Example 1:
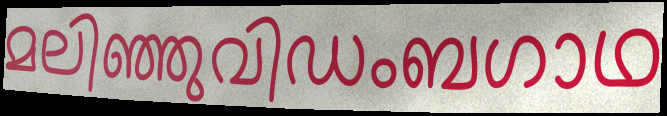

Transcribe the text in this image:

മലിഞ്ഞുവിഡംബഗാഥ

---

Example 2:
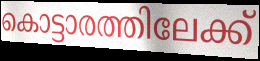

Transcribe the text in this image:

കൊട്ടാരത്തിലേക്ക്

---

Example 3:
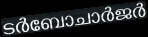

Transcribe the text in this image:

ടർബോചാർജർ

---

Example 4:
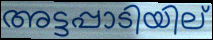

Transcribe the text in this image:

അട്ടപ്പാടിയില്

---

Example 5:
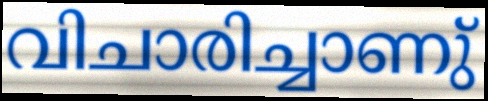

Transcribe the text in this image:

വിചാരിച്ചാണു്